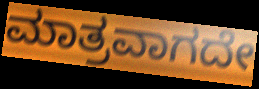
ಮಾತ್ರವಾಗದೇ